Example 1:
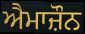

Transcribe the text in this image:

ਐਮਾਜ਼ੌਨ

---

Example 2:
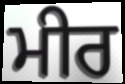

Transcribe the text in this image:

ਮੀਰ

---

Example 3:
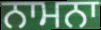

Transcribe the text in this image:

ਨਾਮਨਾ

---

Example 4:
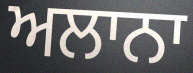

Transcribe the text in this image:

ਅਲਾਨਾ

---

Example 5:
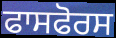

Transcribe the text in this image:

ਫਾਸਫੋਰਸ